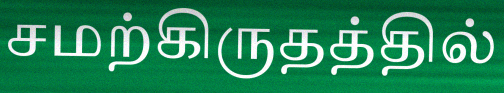
சமற்கிருதத்தில்